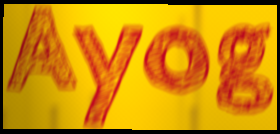
Ayog